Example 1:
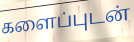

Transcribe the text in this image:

களைப்புடன்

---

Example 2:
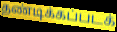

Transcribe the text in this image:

தண்டிக்கப்படக்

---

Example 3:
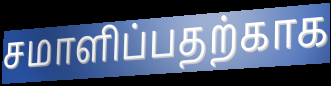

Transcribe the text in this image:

சமாளிப்பதற்காக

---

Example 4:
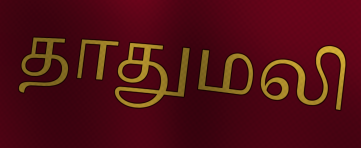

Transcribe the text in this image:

தாதுமலி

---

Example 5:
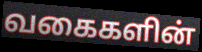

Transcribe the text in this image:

வகைகளின்